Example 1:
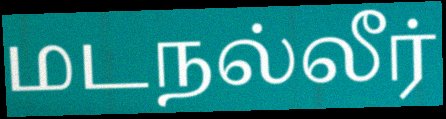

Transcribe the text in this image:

மடநல்லீர்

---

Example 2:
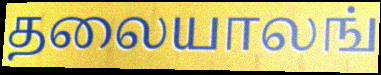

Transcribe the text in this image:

தலையாலங்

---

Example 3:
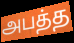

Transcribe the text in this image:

அபத்த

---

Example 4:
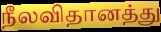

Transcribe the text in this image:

நீலவிதானத்து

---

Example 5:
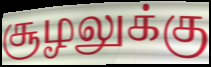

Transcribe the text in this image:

சூழலுக்கு